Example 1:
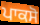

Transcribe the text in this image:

ਪਾਕਸੋ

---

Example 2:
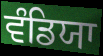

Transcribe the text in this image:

ਵੰਡਿਯਾ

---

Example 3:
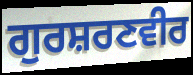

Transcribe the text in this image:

ਗੁਰਸ਼ਰਣਵੀਰ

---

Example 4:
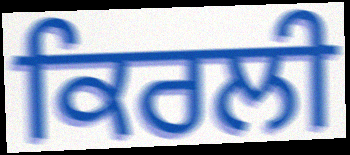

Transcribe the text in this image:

ਕਿਰਲੀ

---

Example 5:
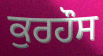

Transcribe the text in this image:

ਕੁਰਹੌਸ